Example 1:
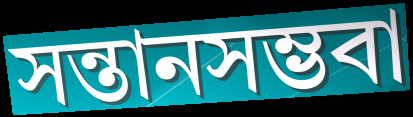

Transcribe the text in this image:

সন্তানসম্ভবা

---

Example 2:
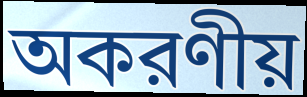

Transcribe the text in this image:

অকরণীয়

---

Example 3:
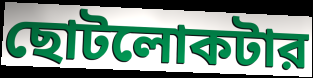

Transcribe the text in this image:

ছোটলোকটার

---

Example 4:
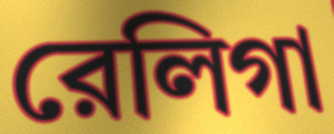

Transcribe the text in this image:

রেলিগা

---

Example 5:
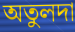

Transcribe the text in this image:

অতুলদা